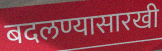
बदलण्यासारखी